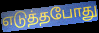
எடுத்தபோது